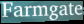
Farmgate